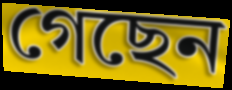
গেছেন